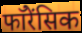
फॉरेंसिक